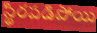
స్థిరపడిపోయి